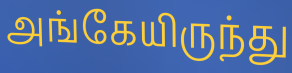
அங்கேயிருந்து